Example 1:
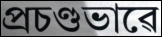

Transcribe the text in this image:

প্ৰচণ্ডভাৱে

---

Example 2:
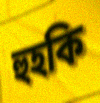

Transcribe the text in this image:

হুহকি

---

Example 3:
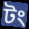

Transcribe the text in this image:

টং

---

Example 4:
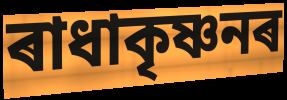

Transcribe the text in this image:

ৰাধাকৃষ্ণনৰ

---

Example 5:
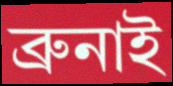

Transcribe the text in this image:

ব্ৰুনাই